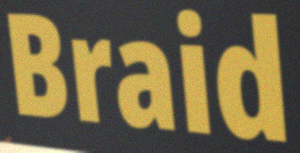
Braid